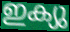
ഇക്യു